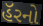
હૅરનો